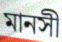
মানসী